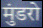
मुंडरो